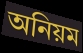
অনিয়ম